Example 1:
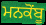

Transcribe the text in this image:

ਮਨਕੋਂਬੂ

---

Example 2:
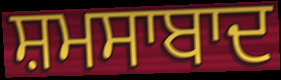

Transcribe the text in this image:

ਸ਼ਮਸਾਬਾਦ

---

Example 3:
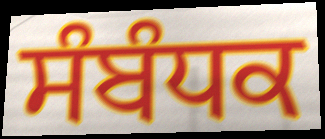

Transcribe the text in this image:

ਸੰਬੰਧਕ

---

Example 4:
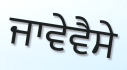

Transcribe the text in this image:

ਜਾਵੇਵੈਸੇ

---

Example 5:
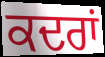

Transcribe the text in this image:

ਕਦਰਾਂ